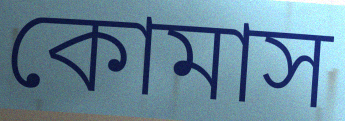
কোমাস